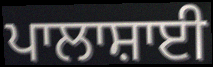
ਪਾਲਾਸ਼ਾਈ